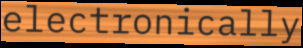
electronically